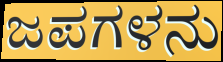
ಜಪಗಳನು